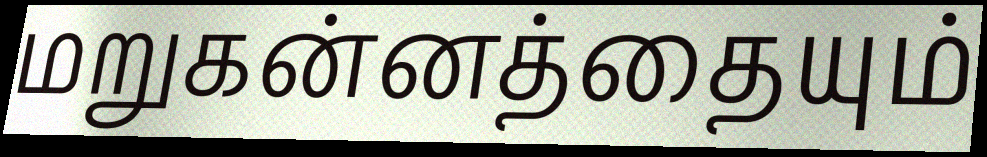
மறுகன்னத்தையும்